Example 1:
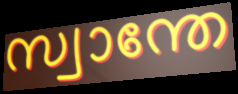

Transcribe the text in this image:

സ്വാന്തേ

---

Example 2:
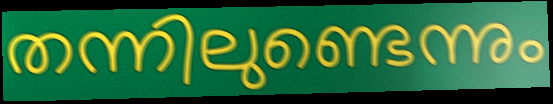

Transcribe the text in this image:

തന്നിലുണ്ടെന്നും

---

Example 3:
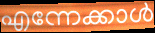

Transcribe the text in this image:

എന്നേക്കാൾ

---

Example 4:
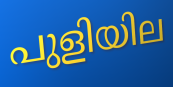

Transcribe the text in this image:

പുളിയില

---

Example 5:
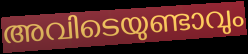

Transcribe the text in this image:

അവിടെയുണ്ടാവും